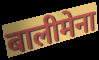
बालीमेना